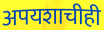
अपयशाचीही